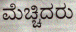
ಮೆಚ್ಚಿದರು